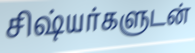
சிஷ்யர்களுடன்